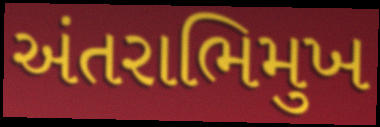
અંતરાભિમુખ